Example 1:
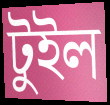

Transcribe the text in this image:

টুইল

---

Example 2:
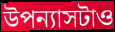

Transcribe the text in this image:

উপন্যাসটাও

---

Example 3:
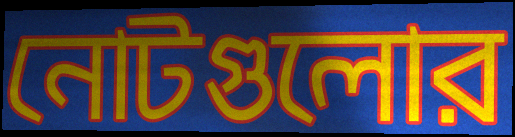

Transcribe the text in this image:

নোটগুলোর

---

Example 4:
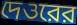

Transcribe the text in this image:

দেওরের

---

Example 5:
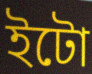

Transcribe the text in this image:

ইটো